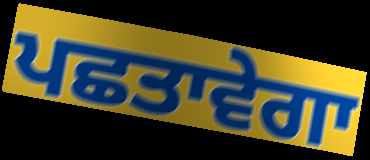
ਪਛਤਾਵੇਗਾ